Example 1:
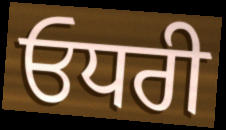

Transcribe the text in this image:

ਓਧਰੀ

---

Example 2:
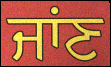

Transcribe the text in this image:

ਜਾਂਣ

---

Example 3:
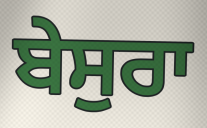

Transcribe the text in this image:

ਬੇਸੁਰਾ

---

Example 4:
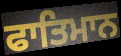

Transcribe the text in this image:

ਫਾਤਿਮਾਨ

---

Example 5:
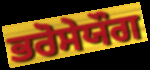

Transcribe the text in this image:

ਭਰੋਸੇਯੌਗ